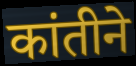
कांतीने